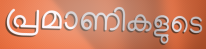
പ്രമാണികളുടെ